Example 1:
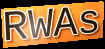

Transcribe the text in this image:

RWAs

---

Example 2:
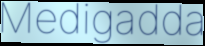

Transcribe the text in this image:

Medigadda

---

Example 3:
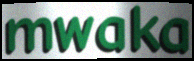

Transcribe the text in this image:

mwaka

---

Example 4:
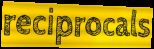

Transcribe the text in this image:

reciprocals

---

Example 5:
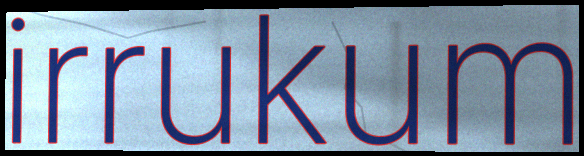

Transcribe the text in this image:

irrukum